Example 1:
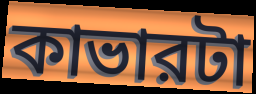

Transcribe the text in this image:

কাভারটা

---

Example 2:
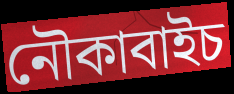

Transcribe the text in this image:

নৌকাবাইচ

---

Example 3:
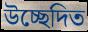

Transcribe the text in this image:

উচ্ছেদিত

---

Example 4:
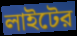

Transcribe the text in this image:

লাইটের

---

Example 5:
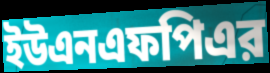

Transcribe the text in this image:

ইউএনএফপিএর